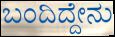
ಬಂದಿದ್ದೇನು